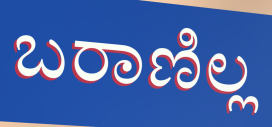
ಬರಾಣಿಲ್ಲ